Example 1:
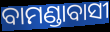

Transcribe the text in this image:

ବାମଣ୍ଡାବାସୀ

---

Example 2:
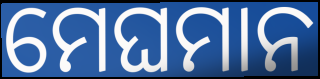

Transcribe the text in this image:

ମେଘମାନ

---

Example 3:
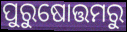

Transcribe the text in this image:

ପୁରୁଷୋତ୍ତମରୁ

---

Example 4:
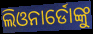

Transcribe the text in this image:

ଲିଓନାର୍ଡୋଙ୍କୁ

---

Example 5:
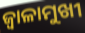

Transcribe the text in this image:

ଜ୍ୱାଳାମୁଖୀ